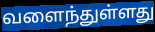
வளைந்துள்ளது